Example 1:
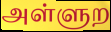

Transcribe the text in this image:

அள்ளுற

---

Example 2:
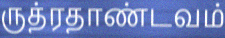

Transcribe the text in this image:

ருத்ரதாண்டவம்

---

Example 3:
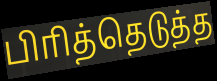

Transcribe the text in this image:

பிரித்தெடுத்த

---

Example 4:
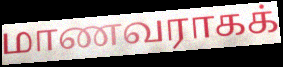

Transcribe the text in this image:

மாணவராகக்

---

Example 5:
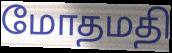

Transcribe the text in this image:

மோதமதி